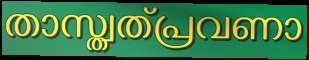
താസ്ത്വത്പ്രവണാ